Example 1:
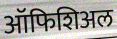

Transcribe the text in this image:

ऑफिशिअल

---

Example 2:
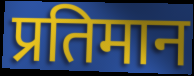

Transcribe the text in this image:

प्रतिमान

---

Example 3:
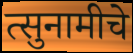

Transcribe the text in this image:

त्सुनामीचे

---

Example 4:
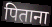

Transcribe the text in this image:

पिताना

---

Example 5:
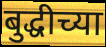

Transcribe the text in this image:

बुद्धीच्या